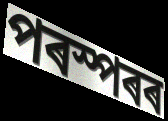
পৰস্পৰৰ